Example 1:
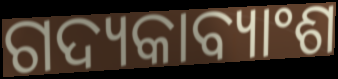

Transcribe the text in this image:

ଗଦ୍ୟକାବ୍ୟାଂଶ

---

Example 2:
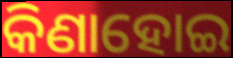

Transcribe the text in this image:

କିଣାହୋଇ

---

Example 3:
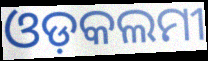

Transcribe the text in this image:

ଓଡ଼କଲମୀ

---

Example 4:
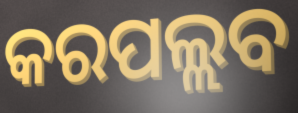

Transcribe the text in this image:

କରପଲ୍ଲବ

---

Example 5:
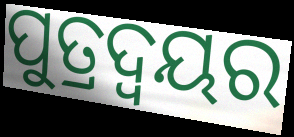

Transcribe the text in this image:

ପୁତ୍ରଦ୍ୱୟର